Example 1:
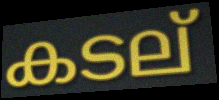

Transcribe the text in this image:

കടല്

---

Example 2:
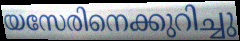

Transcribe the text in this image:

യസേരിനെക്കുറിച്ചു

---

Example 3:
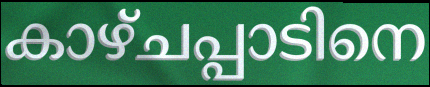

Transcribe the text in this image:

കാഴ്ചപ്പാടിനെ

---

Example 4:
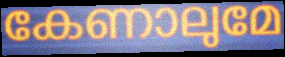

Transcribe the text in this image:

കേണാലുമേ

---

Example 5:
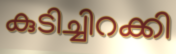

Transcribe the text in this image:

കുടിച്ചിറക്കി